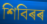
শিবিৰৰ